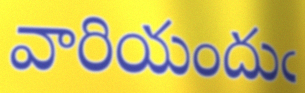
వారియందుఁ